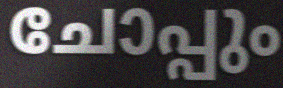
ചോപ്പും